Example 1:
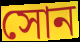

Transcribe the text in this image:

সোন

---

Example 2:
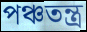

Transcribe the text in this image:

পঞ্চতন্ত্ৰ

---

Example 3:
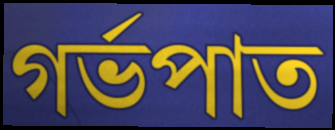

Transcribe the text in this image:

গৰ্ভপাত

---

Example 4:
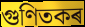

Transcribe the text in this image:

গুণিতকৰ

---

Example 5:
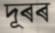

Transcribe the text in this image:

দূৰৰ